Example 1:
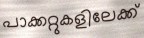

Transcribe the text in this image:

പാക്കറ്റുകളിലേക്ക്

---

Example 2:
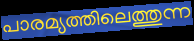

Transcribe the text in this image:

പാരമ്യത്തിലെത്തുന്ന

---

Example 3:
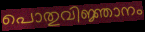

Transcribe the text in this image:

പൊതുവിജ്ഞാനം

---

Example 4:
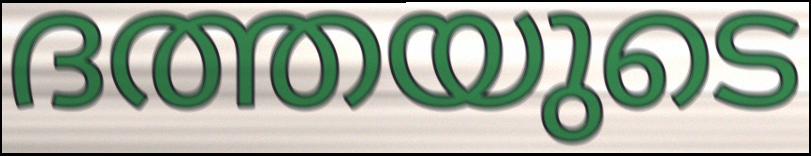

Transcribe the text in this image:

ദത്തയുടെ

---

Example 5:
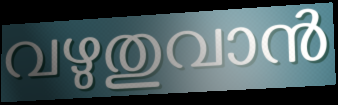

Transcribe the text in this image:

വഴുതുവാൻ